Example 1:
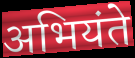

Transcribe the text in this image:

अभियंते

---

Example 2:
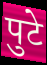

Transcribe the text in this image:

पुटे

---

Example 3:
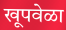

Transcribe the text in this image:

खूपवेळा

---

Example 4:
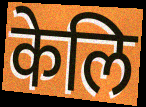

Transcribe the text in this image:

केलि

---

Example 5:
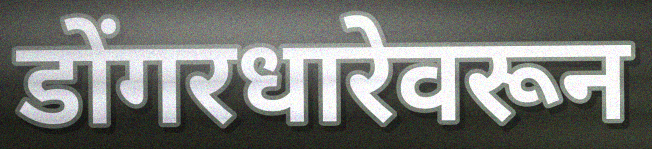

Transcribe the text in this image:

डोंगरधारेवरून